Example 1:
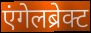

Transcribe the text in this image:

एंगेलब्रेक्ट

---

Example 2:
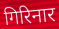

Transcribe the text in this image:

गिरिनार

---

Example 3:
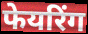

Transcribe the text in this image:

फेयरिंग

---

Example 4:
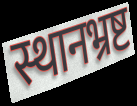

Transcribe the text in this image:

स्थानभ्रष्ट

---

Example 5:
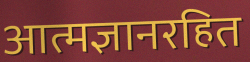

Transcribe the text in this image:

आत्मज्ञानरहित